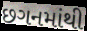
છગનમાંથી